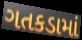
ગતકડામાં